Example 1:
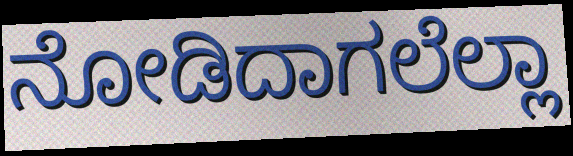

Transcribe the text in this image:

ನೋಡಿದಾಗಲೆಲ್ಲಾ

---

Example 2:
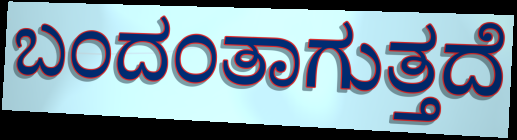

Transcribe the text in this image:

ಬಂದಂತಾಗುತ್ತದೆ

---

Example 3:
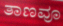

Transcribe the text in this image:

ತಾಣವೂ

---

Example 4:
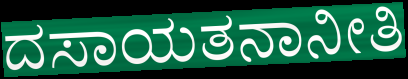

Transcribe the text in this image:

ದಸಾಯತನಾನೀತಿ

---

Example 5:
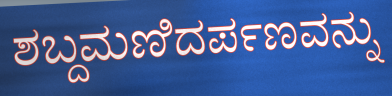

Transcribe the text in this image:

ಶಬ್ದಮಣಿದರ್ಪಣವನ್ನು